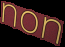
non